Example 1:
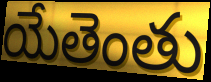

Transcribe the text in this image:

యేతెంతు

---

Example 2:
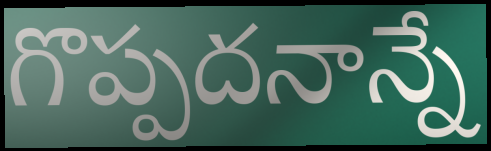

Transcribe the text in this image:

గొప్పదనాన్నే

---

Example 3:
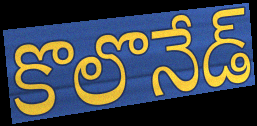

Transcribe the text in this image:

కొలొనేడ్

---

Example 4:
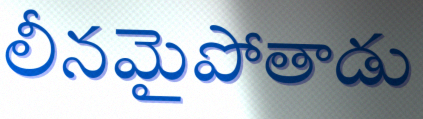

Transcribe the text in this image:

లీనమైపోతాడు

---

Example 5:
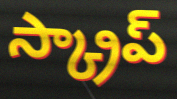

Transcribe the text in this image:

స్క్రాప్